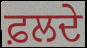
ਫ਼ਲਦੇ